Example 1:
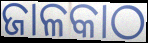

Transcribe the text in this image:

ଜାଳକାଠ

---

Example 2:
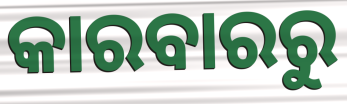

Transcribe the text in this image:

କାରବାରରୁ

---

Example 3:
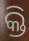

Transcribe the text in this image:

କ୍ତି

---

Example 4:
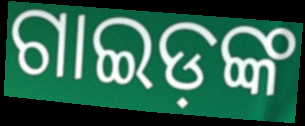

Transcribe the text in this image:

ଗାଇଡ଼ଙ୍କ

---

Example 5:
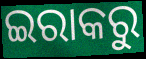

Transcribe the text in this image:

ଇରାକରୁ